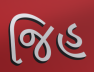
જિહ